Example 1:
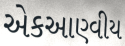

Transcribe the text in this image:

એકઆણ્વીય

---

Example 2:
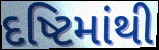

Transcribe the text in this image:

દષ્ટિમાંથી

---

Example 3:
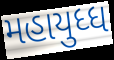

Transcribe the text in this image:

મહાયુધ્ધ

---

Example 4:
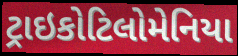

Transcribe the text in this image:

ટ્રાઇકોટિલોમેનિયા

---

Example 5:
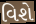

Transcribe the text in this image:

વિશે